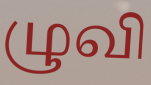
ழுவி